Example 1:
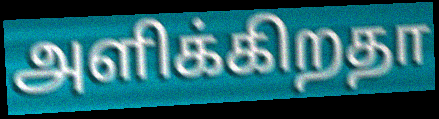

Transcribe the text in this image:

அளிக்கிறதா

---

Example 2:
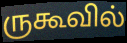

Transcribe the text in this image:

ருகூவில்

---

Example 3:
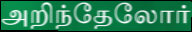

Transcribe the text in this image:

அறிந்தேலோர்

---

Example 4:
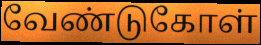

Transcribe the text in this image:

வேண்டுகோள்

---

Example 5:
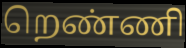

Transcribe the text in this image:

றெண்ணி